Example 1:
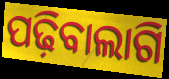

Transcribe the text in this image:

ପଢ଼ିବାଲାଗି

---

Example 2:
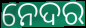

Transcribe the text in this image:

ନେଦର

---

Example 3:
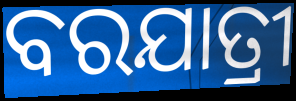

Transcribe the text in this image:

ବରଯାତ୍ରୀ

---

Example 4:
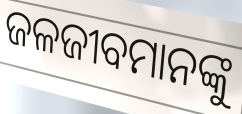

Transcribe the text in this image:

ଜଳଜୀବମାନଙ୍କୁ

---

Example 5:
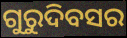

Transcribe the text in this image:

ଗୁରୁଦିବସର